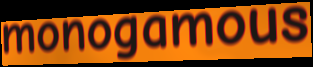
monogamous